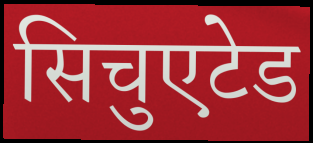
सिचुएटेड